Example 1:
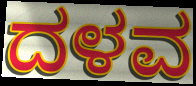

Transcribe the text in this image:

ದಳವ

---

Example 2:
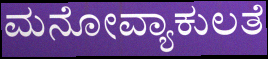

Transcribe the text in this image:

ಮನೋವ್ಯಾಕುಲತೆ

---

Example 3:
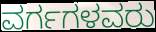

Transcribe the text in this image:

ವರ್ಗಗಳವರು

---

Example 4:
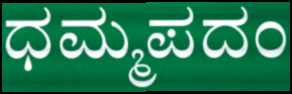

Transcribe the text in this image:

ಧಮ್ಮಪದಂ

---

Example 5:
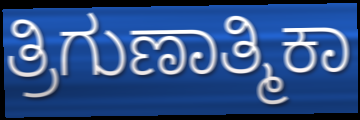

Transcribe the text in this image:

ತ್ರಿಗುಣಾತ್ಮಿಕಾ